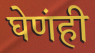
घेणंही